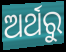
ଅର୍ଥରୁ